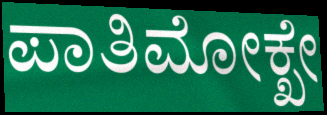
ಪಾತಿಮೋಕ್ಖೇ